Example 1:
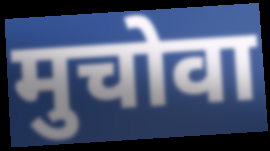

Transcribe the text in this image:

मुचोवा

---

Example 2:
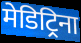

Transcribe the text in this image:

मेडिट्रिना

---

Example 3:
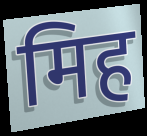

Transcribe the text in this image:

मिह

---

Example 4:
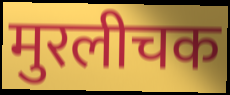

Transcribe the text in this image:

मुरलीचक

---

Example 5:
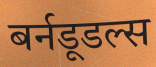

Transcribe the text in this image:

बर्नडूडल्स